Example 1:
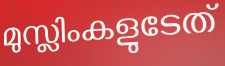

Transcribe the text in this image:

മുസ്ലിംകളുടേത്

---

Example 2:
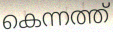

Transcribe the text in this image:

കെന്നത്ത്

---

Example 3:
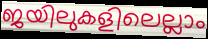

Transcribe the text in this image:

ജയിലുകളിലെല്ലാം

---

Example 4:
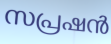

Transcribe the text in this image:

സപ്രഷൻ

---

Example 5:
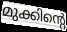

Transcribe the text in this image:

മുക്കിന്റെ